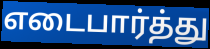
எடைபார்த்து